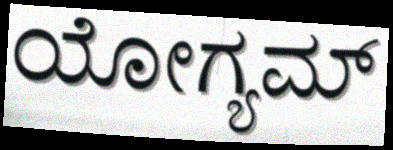
ಯೋಗ್ಯಮ್